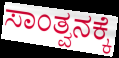
ಸಾಂತ್ವನಕ್ಕೆ